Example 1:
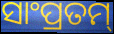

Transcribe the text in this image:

ସାଂପ୍ରତମ୍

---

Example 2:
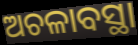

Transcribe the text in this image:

ଅଚଳାବସ୍ଥା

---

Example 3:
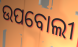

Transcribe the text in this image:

ଉପବୋଲୀ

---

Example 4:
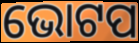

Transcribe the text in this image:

ଭୋଟପ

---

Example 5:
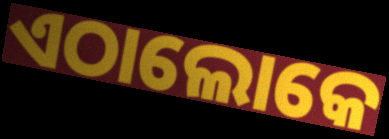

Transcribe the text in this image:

ଏଠାଲୋକେ